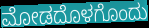
ಮೋಡದೊಳಗೊಂದು